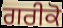
ਗਰੀਕੋ